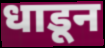
धाडून